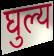
घुल्य